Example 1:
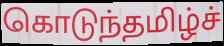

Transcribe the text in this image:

கொடுந்தமிழ்ச்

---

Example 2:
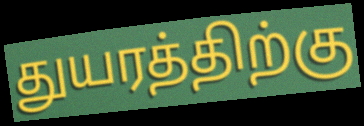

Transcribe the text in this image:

துயரத்திற்கு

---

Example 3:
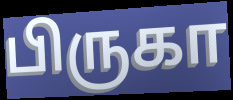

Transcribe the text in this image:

பிருகா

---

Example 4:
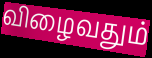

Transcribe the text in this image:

விழைவதும்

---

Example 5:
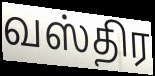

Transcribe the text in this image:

வஸ்திர